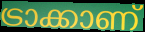
ട്രാക്കാണ്